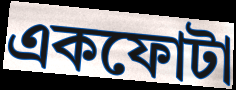
একফোটা